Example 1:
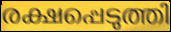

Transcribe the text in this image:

രക്ഷപ്പെടുത്തി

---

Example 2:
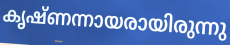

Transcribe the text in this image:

കൃഷ്ണന്നായരായിരുന്നു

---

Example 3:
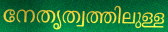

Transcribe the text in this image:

നേതൃത്വത്തിലുള്ള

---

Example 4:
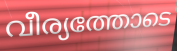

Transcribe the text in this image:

വീര്യത്തോടെ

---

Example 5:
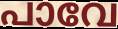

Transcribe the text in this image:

പാവേ